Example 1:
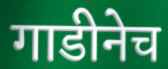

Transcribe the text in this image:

गाडीनेच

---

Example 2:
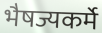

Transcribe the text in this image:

भैषज्यकर्मे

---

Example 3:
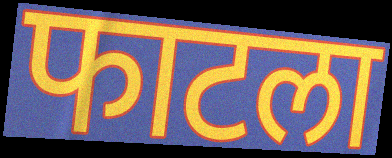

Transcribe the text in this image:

फाटला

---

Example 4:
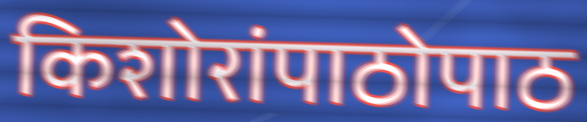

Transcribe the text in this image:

किशोरांपाठोपाठ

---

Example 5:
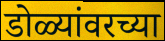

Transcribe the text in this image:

डोळ्यांवरच्या